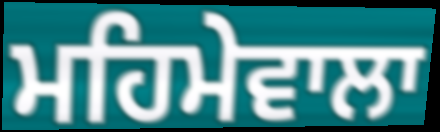
ਮਹਿਮੇਵਾਲਾ